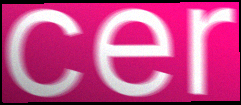
cer